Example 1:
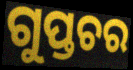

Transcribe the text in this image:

ଗୁପ୍ତଚର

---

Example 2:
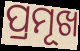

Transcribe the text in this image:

ପ୍ରମୂଖ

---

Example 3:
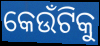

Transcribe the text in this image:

କେଉଁଟିକୁ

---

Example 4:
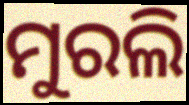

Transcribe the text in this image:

ମୁରଲି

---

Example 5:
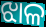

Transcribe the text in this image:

ଝାଳ